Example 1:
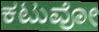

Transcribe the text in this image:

ಕಟುವೋ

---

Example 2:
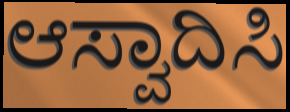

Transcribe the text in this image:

ಆಸ್ವಾದಿಸಿ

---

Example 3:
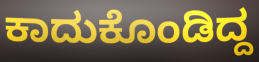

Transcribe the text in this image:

ಕಾದುಕೊಂಡಿದ್ದ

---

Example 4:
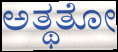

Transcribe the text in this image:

ಅತ್ಥತೋ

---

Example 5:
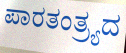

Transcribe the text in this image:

ಪಾರತಂತ್ರ್ಯದ